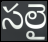
సలై